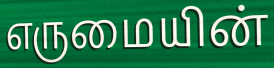
எருமையின்